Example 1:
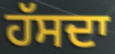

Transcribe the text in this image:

ਹੱਸਦਾ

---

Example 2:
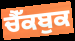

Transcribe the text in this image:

ਚੈੱਕਬੁਕ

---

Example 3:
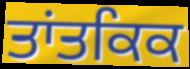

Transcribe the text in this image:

ਤਾਂਤਕਿਕ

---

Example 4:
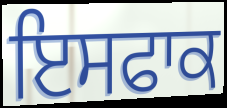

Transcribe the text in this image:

ਇਸਫਾਕ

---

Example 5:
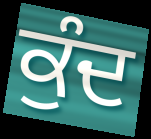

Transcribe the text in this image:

ਕੁੰਦ